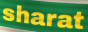
sharat